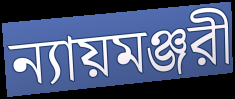
ন্যায়মঞ্জরী